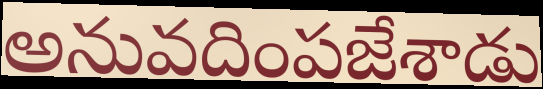
అనువదింపజేశాడు